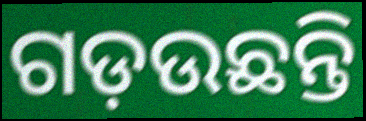
ଗଡ଼ଉଛନ୍ତି